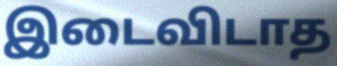
இடைவிடாத